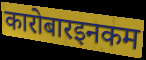
कारोबारइनकम